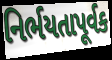
નિર્ભયતાપૂર્વક